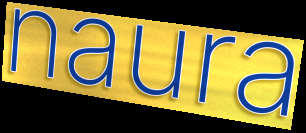
naura